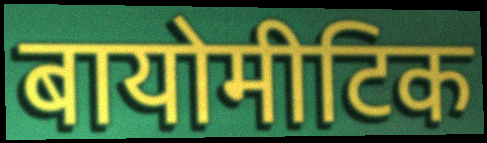
बायोमीटिक